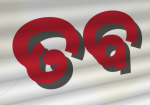
ତବ